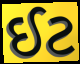
ઈટ